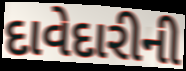
દાવેદારીની